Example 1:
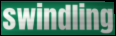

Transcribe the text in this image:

swindling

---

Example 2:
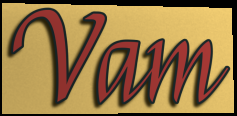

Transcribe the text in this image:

Vam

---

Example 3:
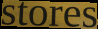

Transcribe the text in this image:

stores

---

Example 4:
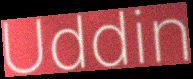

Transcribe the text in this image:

Uddin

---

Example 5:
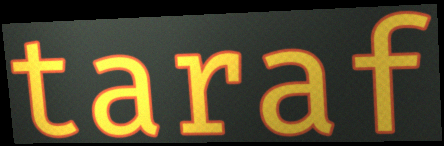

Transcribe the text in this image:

taraf